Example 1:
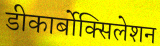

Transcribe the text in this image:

डीकार्बोक्सिलेशन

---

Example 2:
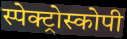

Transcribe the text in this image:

स्पेक्ट्रोस्कोपी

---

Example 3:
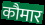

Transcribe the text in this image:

कौमार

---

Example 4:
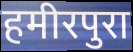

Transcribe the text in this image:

हमीरपुरा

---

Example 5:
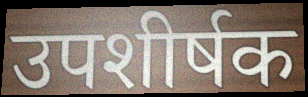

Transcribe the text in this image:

उपशीर्षक